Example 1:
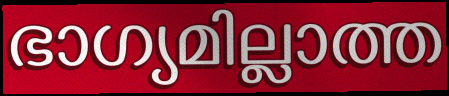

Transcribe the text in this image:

ഭാഗ്യമില്ലാത്ത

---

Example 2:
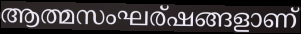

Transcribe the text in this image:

ആത്മസംഘര്ഷങ്ങളാണ്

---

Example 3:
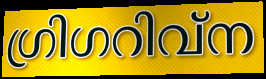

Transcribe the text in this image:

ഗ്രിഗറിവ്ന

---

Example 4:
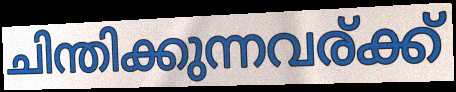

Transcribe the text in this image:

ചിന്തിക്കുന്നവര്ക്ക്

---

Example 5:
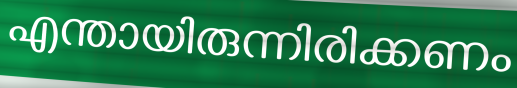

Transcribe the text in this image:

എന്തായിരുന്നിരിക്കണം